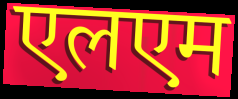
एलएम